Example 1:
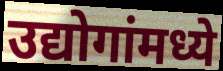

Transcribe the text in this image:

उद्योगांमध्ये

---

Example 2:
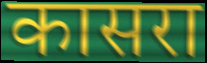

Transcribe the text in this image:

कासरा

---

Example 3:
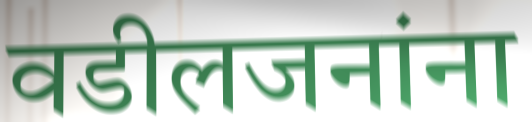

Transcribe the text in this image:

वडीलजनांना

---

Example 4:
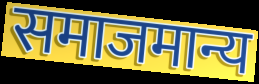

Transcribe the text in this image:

समाजमान्य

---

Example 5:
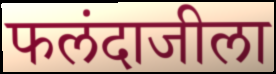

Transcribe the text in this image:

फलंदाजीला